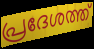
പ്രദേശത്ത്